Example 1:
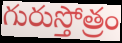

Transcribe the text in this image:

గురుస్తోత్రం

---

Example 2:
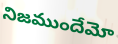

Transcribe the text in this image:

నిజముందేమో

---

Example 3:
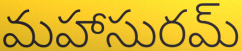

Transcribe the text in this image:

మహాసురమ్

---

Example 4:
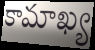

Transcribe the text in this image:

కామాఖ్య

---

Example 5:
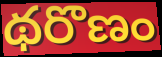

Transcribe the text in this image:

థరొణం